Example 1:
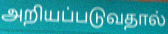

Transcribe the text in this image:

அறியப்படுவதால்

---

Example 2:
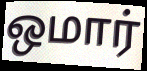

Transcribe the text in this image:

ஒமார்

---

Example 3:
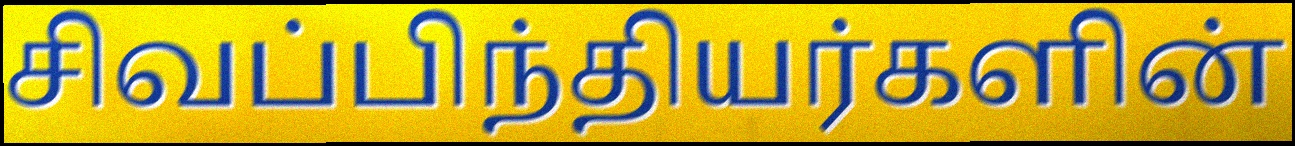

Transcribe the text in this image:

சிவப்பிந்தியர்களின்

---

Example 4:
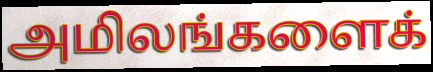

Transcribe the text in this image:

அமிலங்களைக்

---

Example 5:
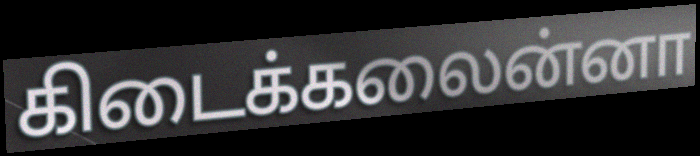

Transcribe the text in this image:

கிடைக்கலைன்னா